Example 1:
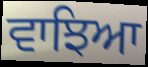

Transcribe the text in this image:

ਵਾਝਿਆ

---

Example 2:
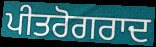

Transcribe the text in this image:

ਪੀਤਰੋਗਰਾਦ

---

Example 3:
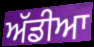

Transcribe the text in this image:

ਅੱਡੀਆ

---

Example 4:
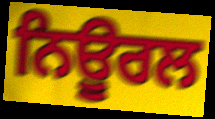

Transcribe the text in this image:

ਨਿਊਰਲ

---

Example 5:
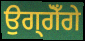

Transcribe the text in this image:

ਉਗ੍ਗੋਁਗੇ